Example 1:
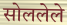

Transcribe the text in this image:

सोललेले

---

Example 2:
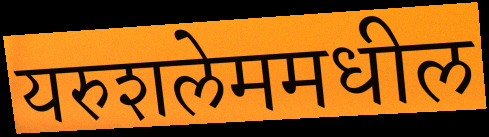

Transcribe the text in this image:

यरुशलेममधील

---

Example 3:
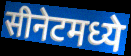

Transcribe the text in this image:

सीनेटमध्ये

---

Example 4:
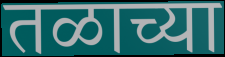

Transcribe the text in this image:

तळाच्या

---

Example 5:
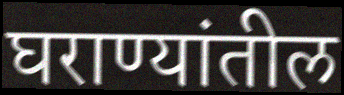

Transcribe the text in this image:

घराण्यांतील